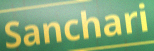
Sanchari